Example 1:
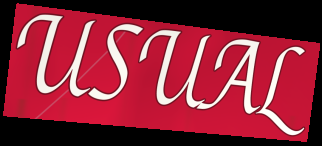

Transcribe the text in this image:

USUAL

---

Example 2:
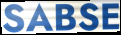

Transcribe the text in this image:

SABSE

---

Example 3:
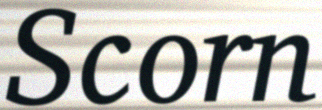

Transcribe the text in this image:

Scorn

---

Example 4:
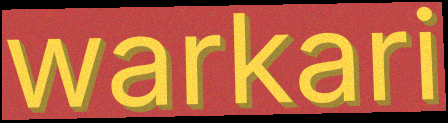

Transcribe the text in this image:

warkari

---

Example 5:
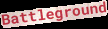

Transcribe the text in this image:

Battleground